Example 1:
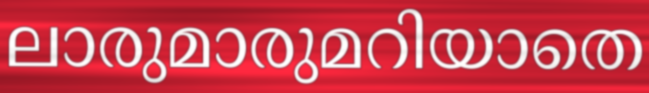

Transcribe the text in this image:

ലാരുമാരുമറിയാതെ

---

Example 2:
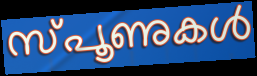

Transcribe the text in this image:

സ്പൂണുകൾ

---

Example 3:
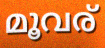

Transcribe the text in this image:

മൂവര്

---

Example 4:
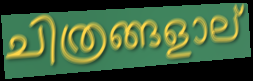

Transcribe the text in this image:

ചിത്രങ്ങളാല്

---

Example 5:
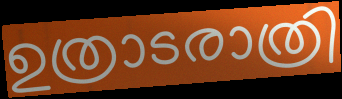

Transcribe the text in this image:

ഉത്രാടരാത്രി